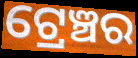
ଟ୍ରେଞ୍ଚର